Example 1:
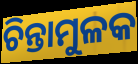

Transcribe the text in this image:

ଚିନ୍ତାମୁଳକ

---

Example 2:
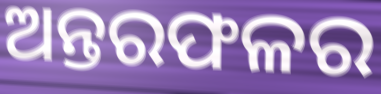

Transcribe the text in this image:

ଅନ୍ତରଫଳର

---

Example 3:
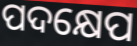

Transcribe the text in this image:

ପଦକ୍ଷେପ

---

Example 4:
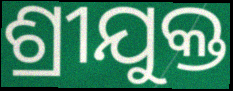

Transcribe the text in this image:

ଶ୍ରୀଯୁକ୍ତ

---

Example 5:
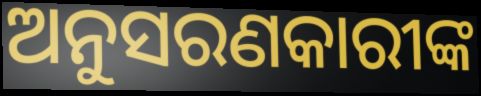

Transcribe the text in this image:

ଅନୁସରଣକାରୀଙ୍କ